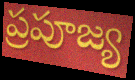
ప్రపూజ్య